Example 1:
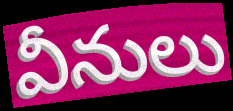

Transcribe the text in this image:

వీనులు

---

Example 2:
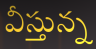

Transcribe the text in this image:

వీస్తున్న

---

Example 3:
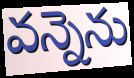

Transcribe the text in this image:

వన్నెను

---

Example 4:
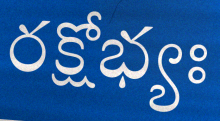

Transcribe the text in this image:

రక్షోభ్యః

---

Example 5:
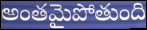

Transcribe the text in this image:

అంతమైపోతుంది